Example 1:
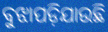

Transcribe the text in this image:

ବୁଝାପଡ଼ିଯାଉଛି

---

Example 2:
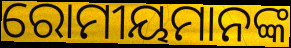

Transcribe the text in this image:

ରୋମୀୟମାନଙ୍କ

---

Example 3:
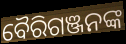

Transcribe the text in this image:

ବୈରିଗଞ୍ଜନଙ୍କ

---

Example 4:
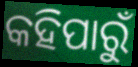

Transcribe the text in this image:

କହିପାରୁଁ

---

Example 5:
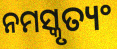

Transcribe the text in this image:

ନମସ୍କୃତ୍ୟଂ